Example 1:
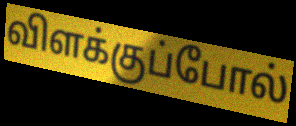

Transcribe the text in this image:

விளக்குப்போல்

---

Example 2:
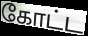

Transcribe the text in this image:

கோட்ட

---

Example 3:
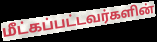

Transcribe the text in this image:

மீட்கப்பட்டவர்களின்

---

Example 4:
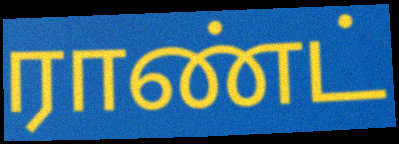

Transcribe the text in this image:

ராண்ட்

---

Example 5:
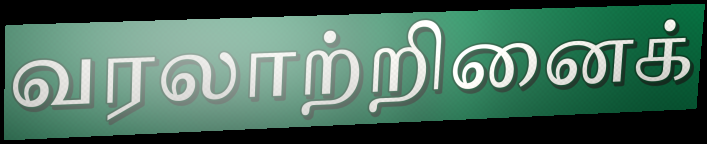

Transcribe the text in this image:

வரலாற்றினைக்